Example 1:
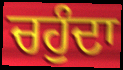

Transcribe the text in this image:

ਚਹੁੰਦਾ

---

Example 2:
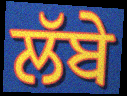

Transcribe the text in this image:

ਲੱਬੇ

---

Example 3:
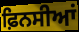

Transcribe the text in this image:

ਫ਼ਿਨਸੀਆਂ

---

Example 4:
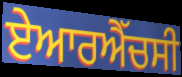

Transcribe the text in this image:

ਏਆਰਐੱਚਸੀ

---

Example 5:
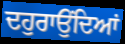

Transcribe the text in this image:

ਦਹੁਰਾਉਂਦਿਆਂ